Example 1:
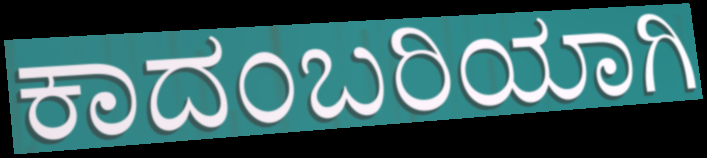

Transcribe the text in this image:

ಕಾದಂಬರಿಯಾಗಿ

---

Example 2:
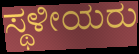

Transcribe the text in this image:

ಸ್ಥಳೀಯರು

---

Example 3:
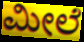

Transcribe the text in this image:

ಮೀಲೆ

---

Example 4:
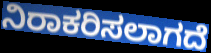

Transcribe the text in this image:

ನಿರಾಕರಿಸಲಾಗದೆ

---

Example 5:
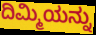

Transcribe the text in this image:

ದಿಮ್ಮಿಯನ್ನು